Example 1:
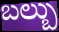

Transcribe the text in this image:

బల్బు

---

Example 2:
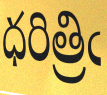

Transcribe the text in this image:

ధరిత్రిఁ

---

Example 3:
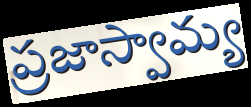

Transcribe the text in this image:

ప్రజాస్వామ్య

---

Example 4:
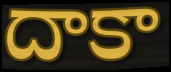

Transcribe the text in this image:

దాకా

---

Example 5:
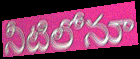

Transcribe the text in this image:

నీటిలోనూ